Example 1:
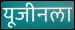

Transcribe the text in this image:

यूजीनला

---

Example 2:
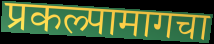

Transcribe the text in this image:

प्रकल्पामागचा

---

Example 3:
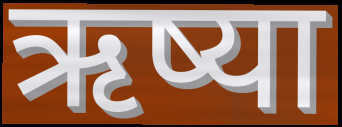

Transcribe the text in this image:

ऋष्या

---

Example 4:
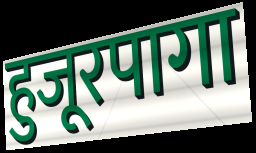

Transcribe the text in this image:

हुजूरपागा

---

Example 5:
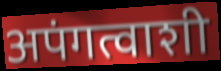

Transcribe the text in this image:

अपंगत्वाशी